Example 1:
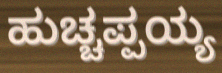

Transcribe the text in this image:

ಹುಚ್ಚಪ್ಪಯ್ಯ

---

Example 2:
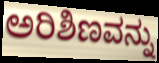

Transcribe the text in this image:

ಅರಿಶಿಣವನ್ನು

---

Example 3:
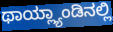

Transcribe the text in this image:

ಥಾಯ್ಲ್ಯಾಂಡಿನಲ್ಲಿ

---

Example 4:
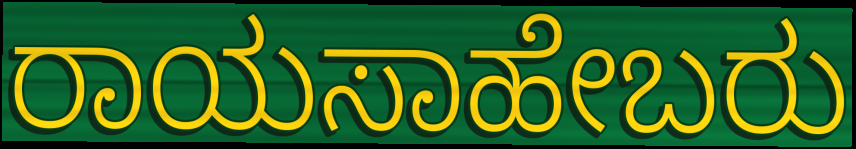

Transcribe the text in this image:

ರಾಯಸಾಹೇಬರು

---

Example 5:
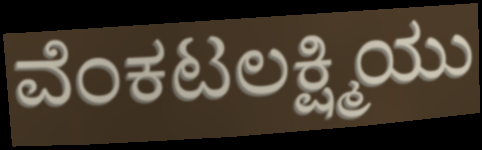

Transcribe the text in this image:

ವೆಂಕಟಲಕ್ಷ್ಮಿಯು